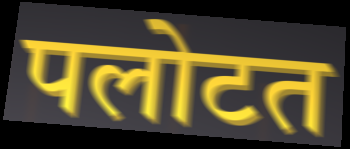
पलोटत